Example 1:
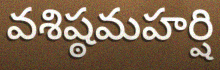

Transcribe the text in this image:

వశిష్ఠమహర్షి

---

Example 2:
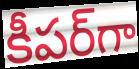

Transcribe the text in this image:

కీపర్‌గా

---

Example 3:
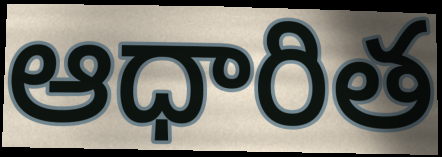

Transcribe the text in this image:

ఆధారిత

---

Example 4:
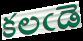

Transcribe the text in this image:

కలఁడె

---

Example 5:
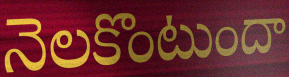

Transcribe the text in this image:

నెలకొంటుందా